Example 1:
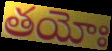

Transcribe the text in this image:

తయోః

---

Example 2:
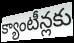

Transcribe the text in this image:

క్యాంటీన్లకు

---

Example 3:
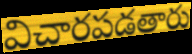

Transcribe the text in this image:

విచారపడతారు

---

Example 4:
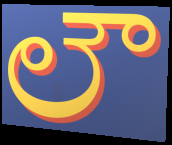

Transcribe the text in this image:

లౌ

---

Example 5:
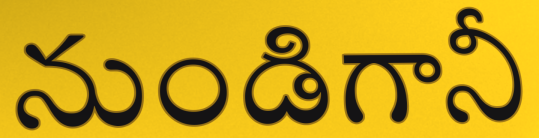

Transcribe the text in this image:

నుండిగానీ